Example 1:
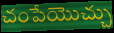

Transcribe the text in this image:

చంపేయొచ్చు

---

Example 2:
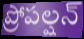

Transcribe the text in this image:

ప్రోపల్షన్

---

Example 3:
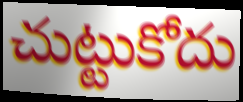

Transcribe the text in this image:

చుట్టుకోదు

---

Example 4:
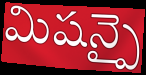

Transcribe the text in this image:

మిషన్పై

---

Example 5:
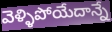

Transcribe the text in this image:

వెళ్ళిపోయేదాన్నే